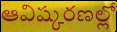
ఆవిష్కరణల్లో